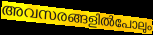
അവസരങ്ങളിൽപോലും